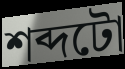
শব্দটো